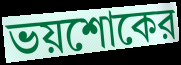
ভয়শোকের